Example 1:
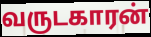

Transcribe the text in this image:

வருடகாரன்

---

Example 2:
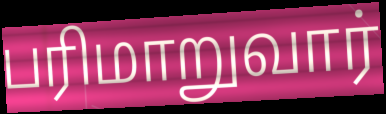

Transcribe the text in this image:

பரிமாறுவார்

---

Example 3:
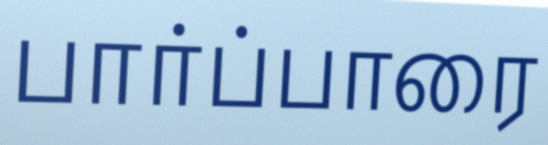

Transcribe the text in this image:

பார்ப்பாரை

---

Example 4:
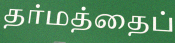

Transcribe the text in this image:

தர்மத்தைப்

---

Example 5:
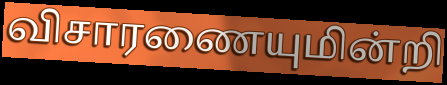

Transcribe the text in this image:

விசாரணையுமின்றி